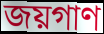
জয়গাণ